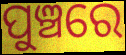
ପୁଞ୍ଚରେ